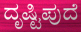
ದೃಷ್ಟಿಪುದೆ